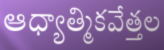
ఆధ్యాత్మికవేత్తల